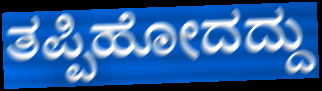
ತಪ್ಪಿಹೋದದ್ದು